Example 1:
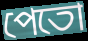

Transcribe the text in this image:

পেতো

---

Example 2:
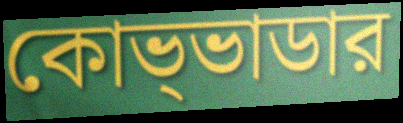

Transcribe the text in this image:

কোভ্ভাডার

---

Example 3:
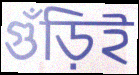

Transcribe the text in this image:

গুঁড়িই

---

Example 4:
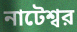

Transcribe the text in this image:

নাটেশ্বর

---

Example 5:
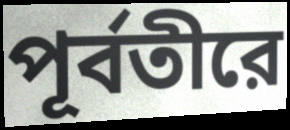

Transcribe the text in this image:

পূর্বতীরে